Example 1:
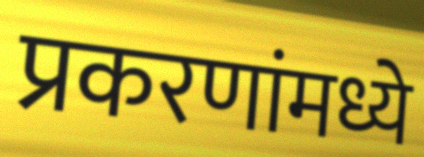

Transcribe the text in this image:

प्रकरणांमध्ये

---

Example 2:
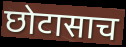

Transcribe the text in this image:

छोटासाच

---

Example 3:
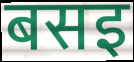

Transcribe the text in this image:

बसइ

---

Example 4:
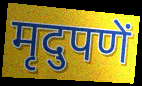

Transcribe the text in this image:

मृदुपणें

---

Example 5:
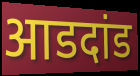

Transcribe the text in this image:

आडदांड